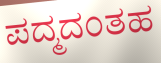
ಪದ್ಮದಂತಹ